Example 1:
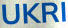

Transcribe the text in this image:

UKRI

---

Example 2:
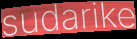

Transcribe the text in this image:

sudarike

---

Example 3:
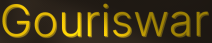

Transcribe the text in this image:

Gouriswar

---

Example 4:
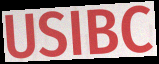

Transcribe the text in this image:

USIBC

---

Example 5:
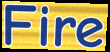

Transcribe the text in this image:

Fire